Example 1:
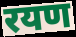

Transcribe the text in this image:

रयण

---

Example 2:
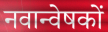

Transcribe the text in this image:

नवान्वेषकों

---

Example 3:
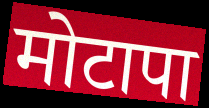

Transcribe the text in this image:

मोटापा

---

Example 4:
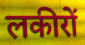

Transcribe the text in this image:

लकीरों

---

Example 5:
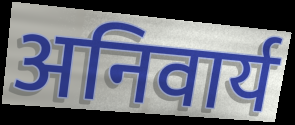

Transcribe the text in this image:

अनिवार्य